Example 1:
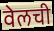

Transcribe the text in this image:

वेलची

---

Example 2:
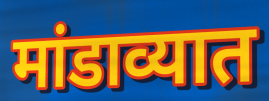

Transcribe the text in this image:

मांडाव्यात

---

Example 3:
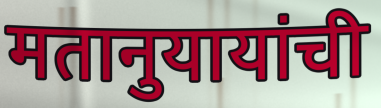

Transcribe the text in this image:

मतानुयायांची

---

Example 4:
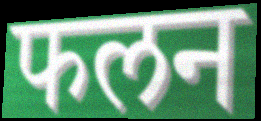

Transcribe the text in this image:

फलन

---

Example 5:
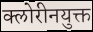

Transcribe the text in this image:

क्लोरीनयुक्त